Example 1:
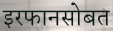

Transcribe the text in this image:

इरफानसोबत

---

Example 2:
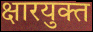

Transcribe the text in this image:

क्षारयुक्त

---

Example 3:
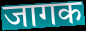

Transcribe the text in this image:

जागक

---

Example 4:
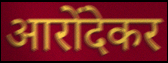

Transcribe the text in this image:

आरोंदेकर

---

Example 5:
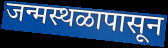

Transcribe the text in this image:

जन्मस्थळापासून